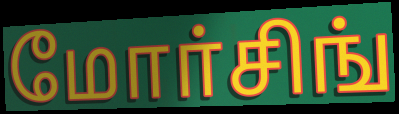
மோர்சிங்